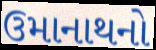
ઉમાનાથનો